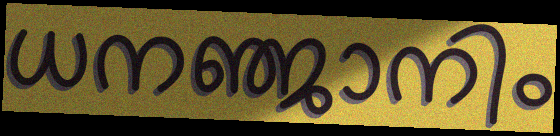
ധനഞ്ജാനിം